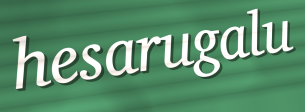
hesarugalu